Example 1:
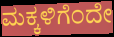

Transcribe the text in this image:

ಮಕ್ಕಳಿಗೆಂದೇ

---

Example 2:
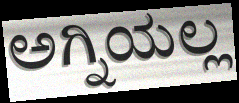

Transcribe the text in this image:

ಅಗ್ನಿಯಲ್ಲ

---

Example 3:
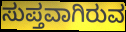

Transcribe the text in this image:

ಸುಪ್ತವಾಗಿರುವ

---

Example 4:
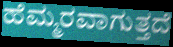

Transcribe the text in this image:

ಹೆಮ್ಮರವಾಗುತ್ತದೆ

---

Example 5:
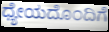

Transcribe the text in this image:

ಧ್ಯೇಯದೊಂದಿಗೆ